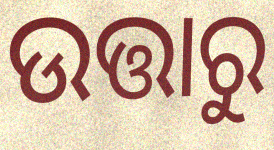
ଉତ୍ତାରୁ